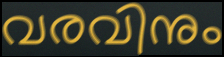
വരവിനും